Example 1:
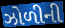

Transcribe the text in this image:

ઝોળીની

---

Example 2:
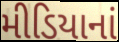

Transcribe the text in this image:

મીડિયાનાં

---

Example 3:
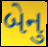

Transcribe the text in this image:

બેનુ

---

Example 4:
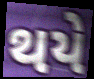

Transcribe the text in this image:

થયે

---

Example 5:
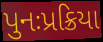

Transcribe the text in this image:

પુનઃપ્રક્રિયા